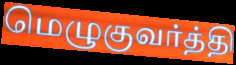
மெழுகுவர்த்தி